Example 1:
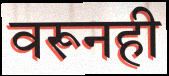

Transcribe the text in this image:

वरूनही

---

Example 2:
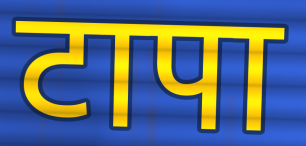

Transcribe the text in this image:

टापा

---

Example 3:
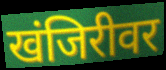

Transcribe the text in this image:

खंजिरीवर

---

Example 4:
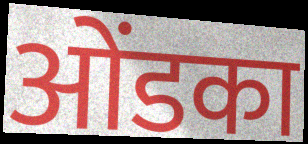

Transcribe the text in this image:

ओंडका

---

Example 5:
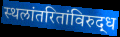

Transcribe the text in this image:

स्थलांतरितांविरुद्ध